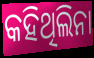
କହିଥିଲିନା